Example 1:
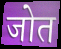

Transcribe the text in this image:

जोत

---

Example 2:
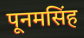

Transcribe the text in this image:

पूनमसिंह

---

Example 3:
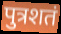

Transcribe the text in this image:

पुत्रशतं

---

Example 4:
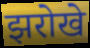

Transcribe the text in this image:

झरोखे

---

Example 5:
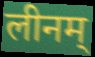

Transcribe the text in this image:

लीनम्